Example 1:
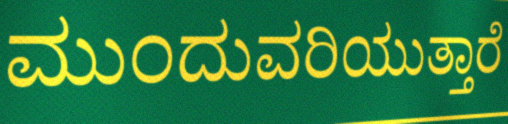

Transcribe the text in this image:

ಮುಂದುವರಿಯುತ್ತಾರೆ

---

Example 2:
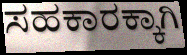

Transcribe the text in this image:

ಸಹಕಾರಕ್ಕಾಗಿ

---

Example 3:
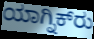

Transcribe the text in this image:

ಯಾಗ್ನಿಕ್‍ರು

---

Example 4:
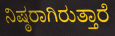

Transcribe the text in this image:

ನಿಷ್ಠರಾಗಿರುತ್ತಾರೆ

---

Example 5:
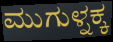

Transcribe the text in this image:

ಮುಗುಳ್ನಕ್ಕ